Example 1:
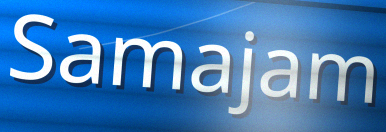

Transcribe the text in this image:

Samajam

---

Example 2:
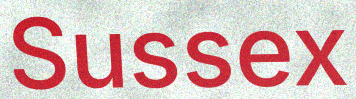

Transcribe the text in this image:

Sussex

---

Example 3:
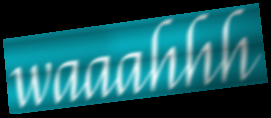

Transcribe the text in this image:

waaahhh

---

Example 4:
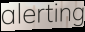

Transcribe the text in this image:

alerting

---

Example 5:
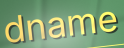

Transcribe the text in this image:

dname